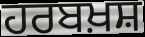
ਹਰਬਖ਼ਸ਼